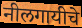
नीलगायीचे